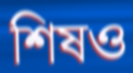
শিষও